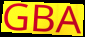
GBA